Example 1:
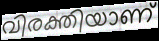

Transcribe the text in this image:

വിരക്തിയാണ്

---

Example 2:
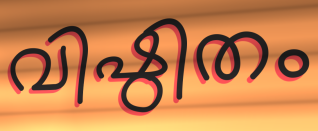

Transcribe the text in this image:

വിഷ്ഠിതം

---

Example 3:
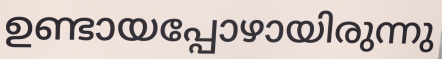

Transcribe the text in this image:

ഉണ്ടായപ്പോഴായിരുന്നു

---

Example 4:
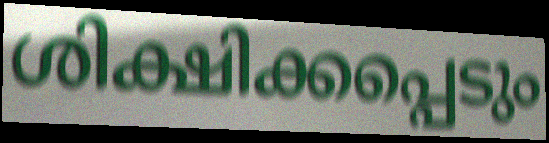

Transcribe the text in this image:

ശിക്ഷിക്കപ്പെടും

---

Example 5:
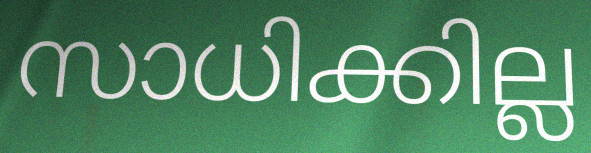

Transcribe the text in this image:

സാധിക്കില്ല